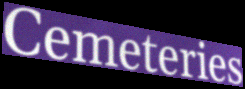
Cemeteries